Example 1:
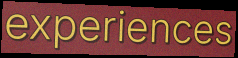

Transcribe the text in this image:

experiences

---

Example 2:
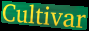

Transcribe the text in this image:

Cultivar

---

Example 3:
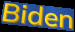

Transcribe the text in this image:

Biden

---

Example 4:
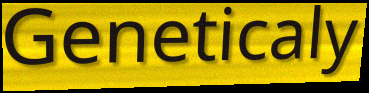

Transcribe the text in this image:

Geneticaly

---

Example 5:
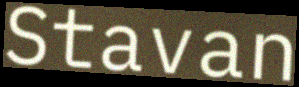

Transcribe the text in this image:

Stavan